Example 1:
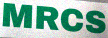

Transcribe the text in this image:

MRCS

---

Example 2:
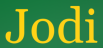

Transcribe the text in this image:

Jodi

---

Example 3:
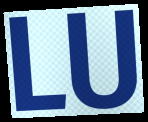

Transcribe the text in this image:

LU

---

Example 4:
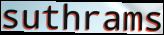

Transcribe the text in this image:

suthrams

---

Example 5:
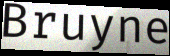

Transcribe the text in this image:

Bruyne